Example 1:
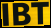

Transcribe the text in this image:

IBT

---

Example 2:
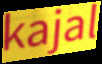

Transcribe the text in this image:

kajal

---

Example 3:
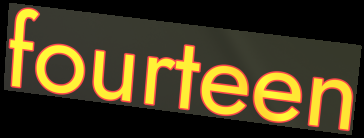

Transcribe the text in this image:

fourteen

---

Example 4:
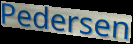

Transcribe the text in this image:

Pedersen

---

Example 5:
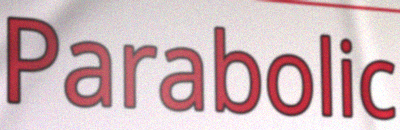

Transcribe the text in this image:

Parabolic